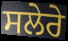
ਸਲੇਰੇ